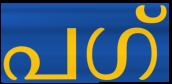
പഗ്